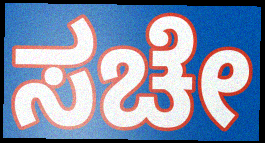
ಸಚೇ